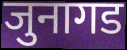
जुनागड